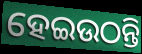
ହେଇଉଠନ୍ତି